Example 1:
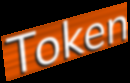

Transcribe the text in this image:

Token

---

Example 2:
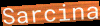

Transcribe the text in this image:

Sarcina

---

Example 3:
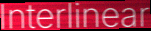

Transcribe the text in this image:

Interlinear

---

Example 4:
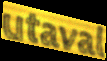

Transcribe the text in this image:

utaval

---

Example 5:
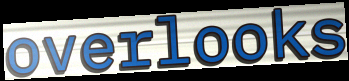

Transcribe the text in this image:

overlooks